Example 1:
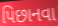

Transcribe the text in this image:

પિછાનવા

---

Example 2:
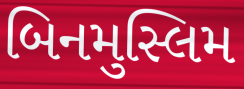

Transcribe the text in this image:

બિનમુસ્લિમ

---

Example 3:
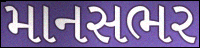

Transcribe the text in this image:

માનસભર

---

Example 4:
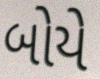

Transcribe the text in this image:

બોયે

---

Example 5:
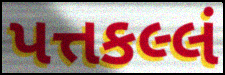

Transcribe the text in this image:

પત્તકલ્લં